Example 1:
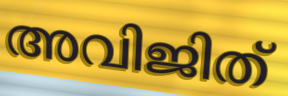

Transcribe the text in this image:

അവിജിത്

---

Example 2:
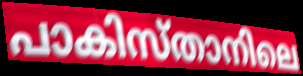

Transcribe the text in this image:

പാകിസ്താനിലെ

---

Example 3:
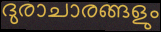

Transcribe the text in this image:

ദുരാചാരങ്ങളും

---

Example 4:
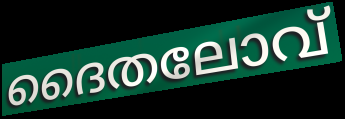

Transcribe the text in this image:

ദൈതലോവ്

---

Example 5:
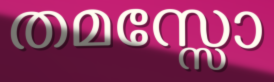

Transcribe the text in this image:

തമസ്സോ